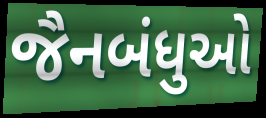
જૈનબંધુઓ